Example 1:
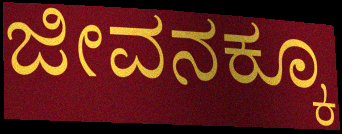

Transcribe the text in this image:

ಜೀವನಕ್ಕೂ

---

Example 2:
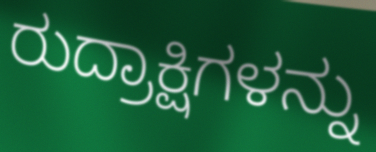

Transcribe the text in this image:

ರುದ್ರಾಕ್ಷಿಗಳನ್ನು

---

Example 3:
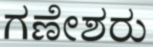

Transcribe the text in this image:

ಗಣೇಶರು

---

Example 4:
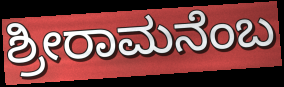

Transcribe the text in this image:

ಶ್ರೀರಾಮನೆಂಬ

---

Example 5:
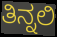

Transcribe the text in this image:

ತಿನ್ನಲಿ